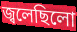
জ্বলেছিলো